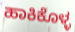
ಹಾಕಿಕೊಳ್ಳ